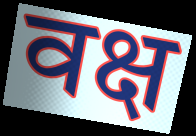
वक्ष